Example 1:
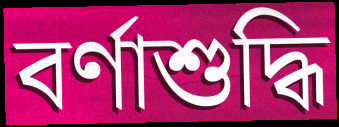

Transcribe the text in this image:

বর্ণাশুদ্ধি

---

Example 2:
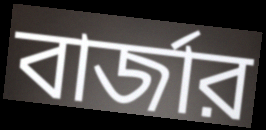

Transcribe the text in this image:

বার্জার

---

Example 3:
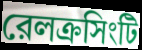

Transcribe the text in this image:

রেলক্রসিংটি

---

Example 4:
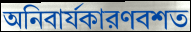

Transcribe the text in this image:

অনিবার্যকারণবশত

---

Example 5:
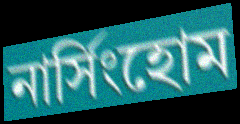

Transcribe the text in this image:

নার্সিংহোম